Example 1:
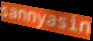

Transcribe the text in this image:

sannyasin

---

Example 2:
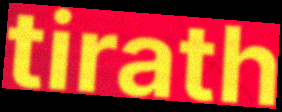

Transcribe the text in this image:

tirath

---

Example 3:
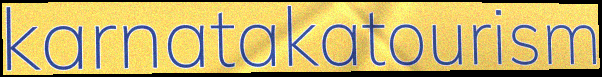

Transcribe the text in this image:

karnatakatourism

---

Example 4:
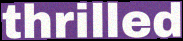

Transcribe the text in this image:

thrilled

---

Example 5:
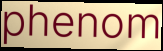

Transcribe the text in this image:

phenom